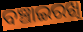
ବଞ୍ଚାଇରଖି